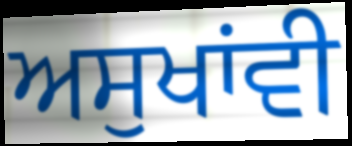
ਅਸੁਖਾਂਵੀ